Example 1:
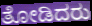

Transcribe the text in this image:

ತೋಡಿದರು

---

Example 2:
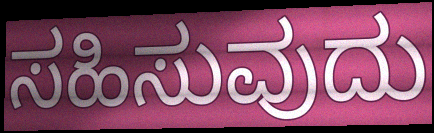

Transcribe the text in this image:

ಸಹಿಸುವುದು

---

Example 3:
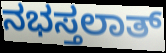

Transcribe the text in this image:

ನಭಸ್ತಲಾತ್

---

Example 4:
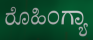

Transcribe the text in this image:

ರೊಹಿಂಗ್ಯಾ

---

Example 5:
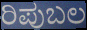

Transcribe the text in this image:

ರಿಪುಬಲ